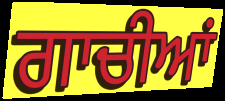
ਗਾਚੀਆਂ